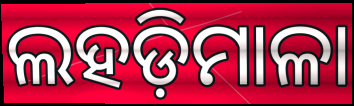
ଲହଡ଼ିମାଳା